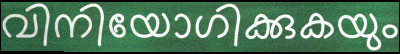
വിനിയോഗിക്കുകയും